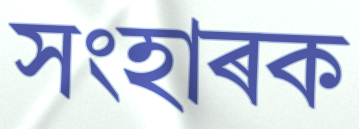
সংহাৰক